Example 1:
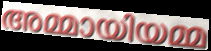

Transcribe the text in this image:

അമ്മായിയമ്മ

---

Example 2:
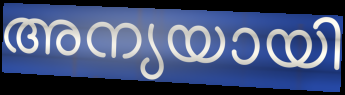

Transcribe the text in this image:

അന്യയായി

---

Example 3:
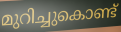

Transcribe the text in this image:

മുറിച്ചുകൊണ്ട്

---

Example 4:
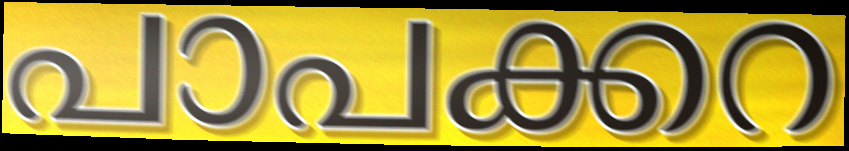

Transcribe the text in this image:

പാപക്കറ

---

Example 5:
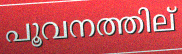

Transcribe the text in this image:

പൂവനത്തില്